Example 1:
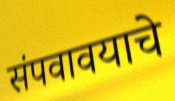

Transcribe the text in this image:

संपवावयाचे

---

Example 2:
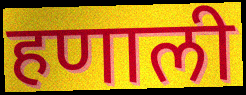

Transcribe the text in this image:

हणाली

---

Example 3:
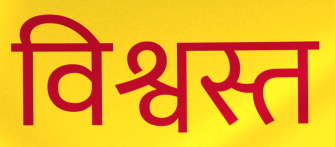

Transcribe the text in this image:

विश्वस्त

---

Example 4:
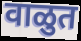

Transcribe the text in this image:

वाळुत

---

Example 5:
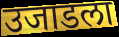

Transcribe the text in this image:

उजाडला